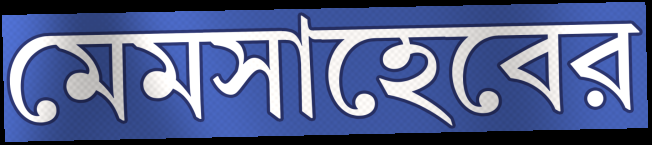
মেমসাহেবের